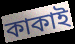
কাকাই